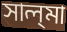
সাল্‌মা